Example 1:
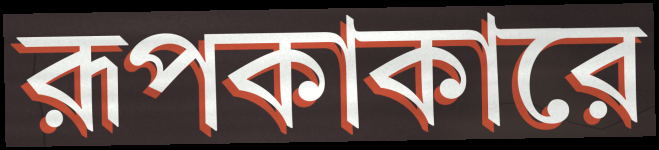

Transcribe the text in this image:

রূপকাকারে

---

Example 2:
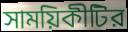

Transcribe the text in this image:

সাময়িকীটির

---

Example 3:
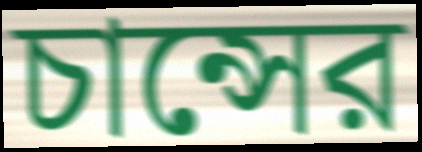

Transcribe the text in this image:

চান্সের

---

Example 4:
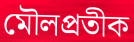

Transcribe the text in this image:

মৌলপ্রতীক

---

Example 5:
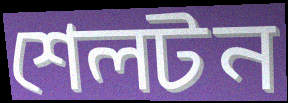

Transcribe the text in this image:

শেলটন